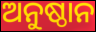
ଅନୁଷ୍ଠାନ